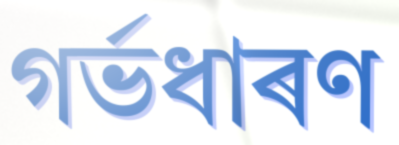
গৰ্ভধাৰণ